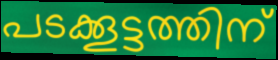
പടക്കൂട്ടത്തിന്